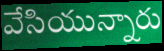
వేసియున్నారు